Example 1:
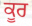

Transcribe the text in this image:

ਕੂਰ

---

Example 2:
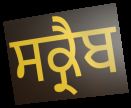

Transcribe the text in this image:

ਸਕ੍ਰੈਬ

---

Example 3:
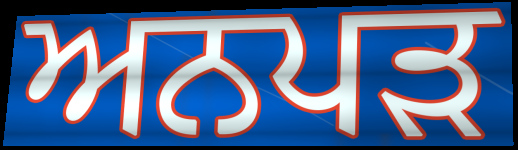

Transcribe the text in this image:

ਅਨਪੜ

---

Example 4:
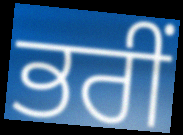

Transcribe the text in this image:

ਭਰੀਂ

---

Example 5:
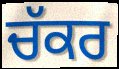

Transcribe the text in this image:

ਚੱਕਰ